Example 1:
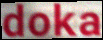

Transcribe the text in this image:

doka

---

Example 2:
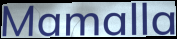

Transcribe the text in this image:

Mamalla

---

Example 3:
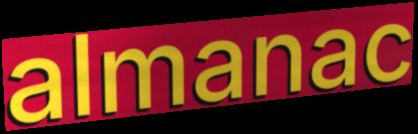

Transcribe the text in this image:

almanac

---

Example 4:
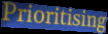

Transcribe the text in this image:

Prioritising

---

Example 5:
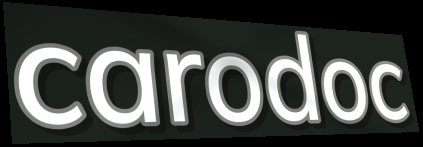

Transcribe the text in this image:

carodoc